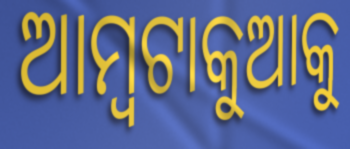
ଆମ୍ବଟାକୁଆକୁ